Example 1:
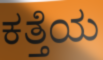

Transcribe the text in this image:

ಕತ್ತೆಯ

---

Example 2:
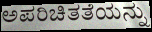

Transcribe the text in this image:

ಅಪರಿಚಿತತೆಯನ್ನು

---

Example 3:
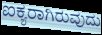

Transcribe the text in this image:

ಐಕ್ಯರಾಗಿರುವುದು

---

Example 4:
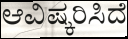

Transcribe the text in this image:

ಆವಿಷ್ಕರಿಸಿದೆ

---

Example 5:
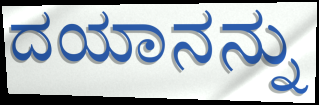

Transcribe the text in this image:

ದಯಾನನ್ನು